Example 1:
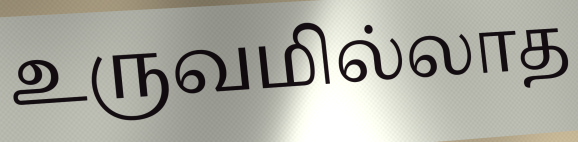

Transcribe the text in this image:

உருவமில்லாத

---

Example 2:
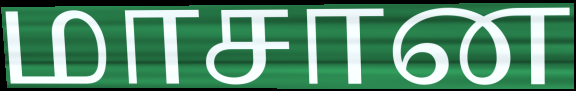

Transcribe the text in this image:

மாசான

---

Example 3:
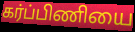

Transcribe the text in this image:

கர்ப்பிணியை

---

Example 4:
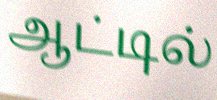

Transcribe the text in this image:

ஆட்டில்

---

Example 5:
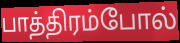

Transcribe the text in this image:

பாத்திரம்போல்